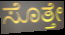
ಸೊತ್ತೇ